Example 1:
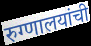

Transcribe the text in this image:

रुग्णालयांची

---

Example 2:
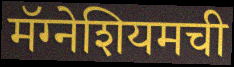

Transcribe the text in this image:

मॅग्नेशियमची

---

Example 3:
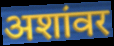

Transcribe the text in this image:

अशांवर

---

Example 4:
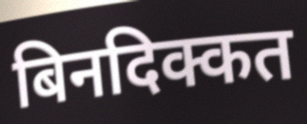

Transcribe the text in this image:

बिनदिक्कत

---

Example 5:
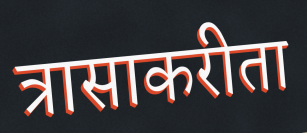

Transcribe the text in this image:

त्रासाकरीता